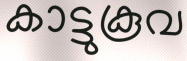
കാട്ടുകൂവ